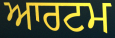
ਆਰਟਮ